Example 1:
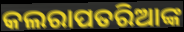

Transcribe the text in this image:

କଲରାପତରିଆଙ୍କ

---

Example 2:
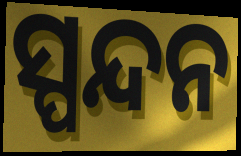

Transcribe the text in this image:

ସ୍ପନ୍ଦନ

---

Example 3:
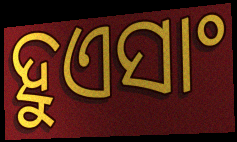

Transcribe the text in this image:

ହୁଏସାଂ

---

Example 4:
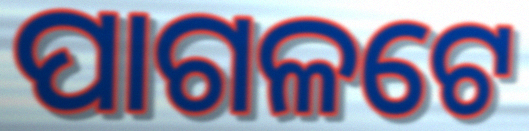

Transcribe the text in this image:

ପାଗଳଟେ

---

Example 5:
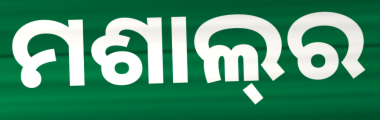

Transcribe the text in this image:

ମଶାଲ୍‌ର